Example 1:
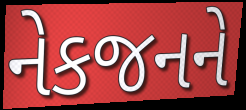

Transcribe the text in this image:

નેકજનને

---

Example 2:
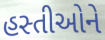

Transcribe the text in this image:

હસ્તીઓને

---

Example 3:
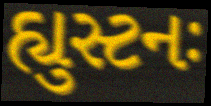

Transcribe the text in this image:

હ્યુસ્ટનઃ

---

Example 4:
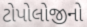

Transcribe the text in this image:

ટોપોલોજીનો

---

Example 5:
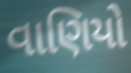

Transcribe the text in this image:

વાણિયો